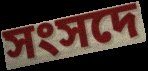
সংসদে